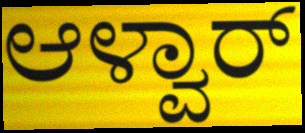
ಆಳ್ವಾರ್